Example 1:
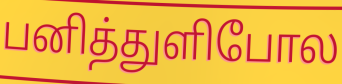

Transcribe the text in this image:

பனித்துளிபோல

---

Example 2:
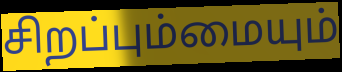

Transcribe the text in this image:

சிறப்பும்மையும்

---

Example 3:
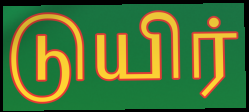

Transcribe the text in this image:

டுயிர்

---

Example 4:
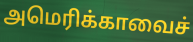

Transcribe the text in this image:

அமெரிக்காவைச்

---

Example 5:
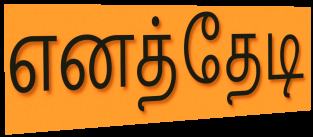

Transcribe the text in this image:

எனத்தேடி